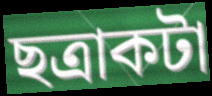
ছত্রাকটা